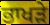
ਭਾਖੜੇ